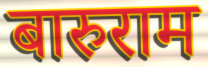
बारुराम